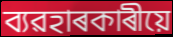
ব্যৱহাৰকাৰীয়ে